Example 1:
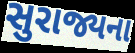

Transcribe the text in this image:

સુરાજ્યના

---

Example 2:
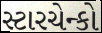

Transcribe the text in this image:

સ્ટારચેન્કો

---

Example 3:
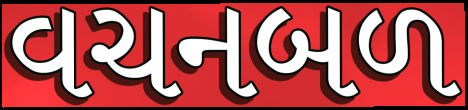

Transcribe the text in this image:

વચનબળ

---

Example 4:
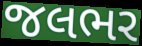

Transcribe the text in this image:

જલભર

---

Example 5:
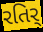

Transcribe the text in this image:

રતિર્